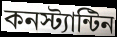
কনস্ট্যান্টিন